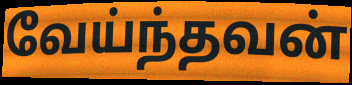
வேய்ந்தவன்